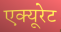
एक्यूरेट